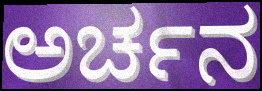
ಅರ್ಚನ